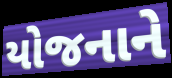
યોજનાને